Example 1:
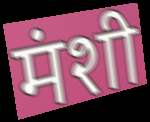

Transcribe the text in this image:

मंशी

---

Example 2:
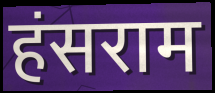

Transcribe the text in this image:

हंसराम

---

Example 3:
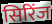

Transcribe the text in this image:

सिरिंज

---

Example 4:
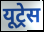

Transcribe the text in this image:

यूट्रेस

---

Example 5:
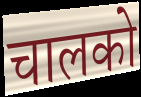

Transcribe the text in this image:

चालको